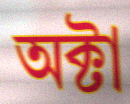
অক্টা